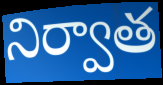
నిర్వాత